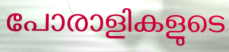
പോരാളികളുടെ